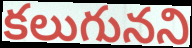
కలుగునని